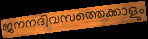
ജനനദിവസത്തെക്കാളും